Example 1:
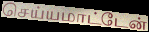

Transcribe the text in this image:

செய்யமாட்டேன்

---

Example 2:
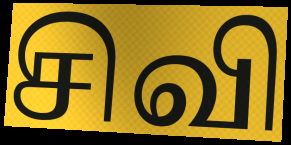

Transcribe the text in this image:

சிவி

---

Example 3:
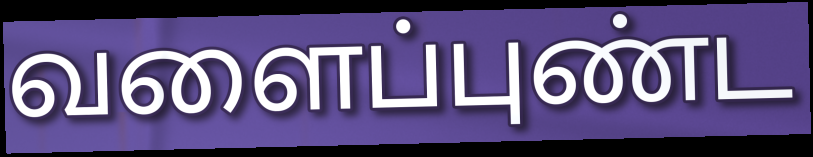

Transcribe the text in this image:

வளைப்புண்ட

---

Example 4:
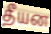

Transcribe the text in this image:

தீயன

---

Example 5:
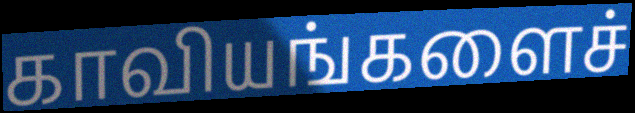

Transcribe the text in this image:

காவியங்களைச்